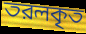
তরলকৃত